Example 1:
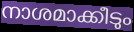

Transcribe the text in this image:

നാശമാക്കീടും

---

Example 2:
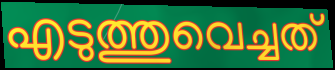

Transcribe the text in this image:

എടുത്തുവെച്ചത്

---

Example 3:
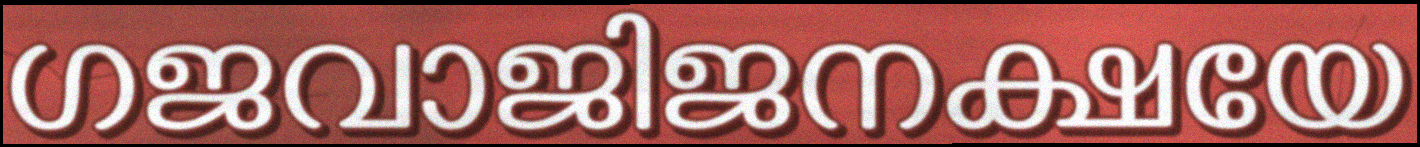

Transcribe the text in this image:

ഗജവാജിജനക്ഷയേ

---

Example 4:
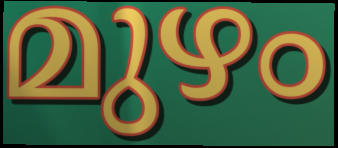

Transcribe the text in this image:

മുഴം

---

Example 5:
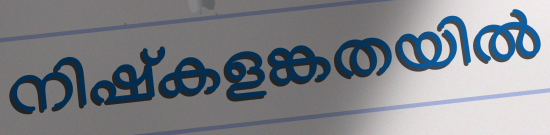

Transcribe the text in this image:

നിഷ്കളങ്കതയിൽ